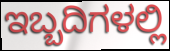
ಇಬ್ಬದಿಗಳಲ್ಲಿ